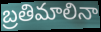
బ్రతిమాలినా